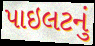
પાઇલટનું